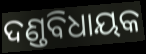
ଦଣ୍ଡବିଧାୟକ